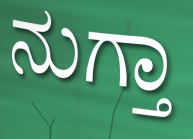
ನುಗ್ತಾ